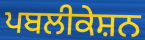
ਪਬਲੀਕੇਸ਼ਨ